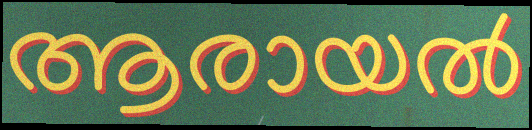
ആരായൽ